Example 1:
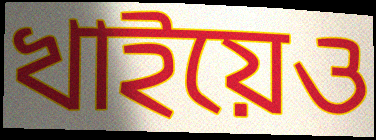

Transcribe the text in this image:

খাইয়েও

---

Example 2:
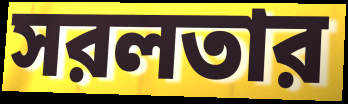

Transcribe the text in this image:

সরলতার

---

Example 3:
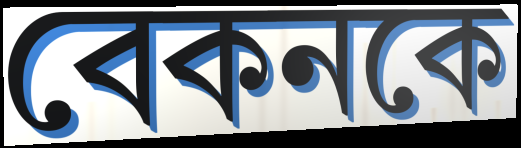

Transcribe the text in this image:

বেকনকে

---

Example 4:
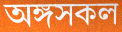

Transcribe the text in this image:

অঙ্গসকল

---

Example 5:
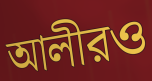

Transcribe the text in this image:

আলীরও